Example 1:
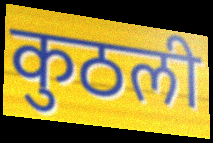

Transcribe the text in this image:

कुठली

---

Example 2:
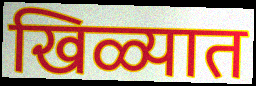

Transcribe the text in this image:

खिळ्यात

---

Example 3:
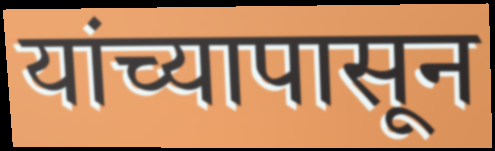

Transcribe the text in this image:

यांच्यापासून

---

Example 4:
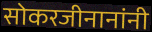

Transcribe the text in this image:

सोकरजीनानांनी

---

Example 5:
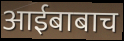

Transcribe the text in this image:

आईबाबाच